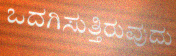
ಒದಗಿಸುತ್ತಿರುವುದು